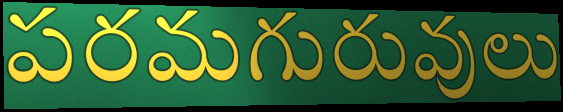
పరమగురువులు